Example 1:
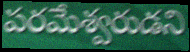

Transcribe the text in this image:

పరమేశ్వరుడని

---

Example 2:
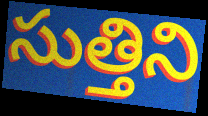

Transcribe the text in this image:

సుత్తిని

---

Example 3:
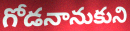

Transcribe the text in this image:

గోడనానుకుని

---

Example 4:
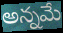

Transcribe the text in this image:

అన్నమే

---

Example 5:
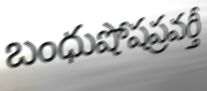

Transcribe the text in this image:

బంధుషోషప్రవర్తీ